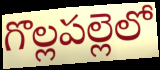
గొల్లపల్లెలో